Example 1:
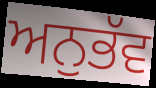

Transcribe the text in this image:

ਅਨੁਭੱਵ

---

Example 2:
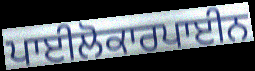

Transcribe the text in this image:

ਪਾਈਲੋਕਾਰਪਾਈਨ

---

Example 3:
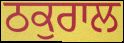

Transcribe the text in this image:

ਠਕੁਰਾਲ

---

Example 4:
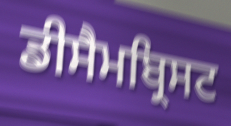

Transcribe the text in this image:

ਡੀਸੈਮਬ੍ਰਿਸਟ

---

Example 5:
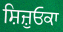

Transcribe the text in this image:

ਸ਼ਿਜ਼ੁਓਕਾ